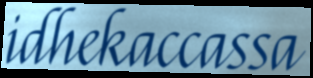
idhekaccassa